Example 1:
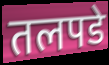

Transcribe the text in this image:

तलपडे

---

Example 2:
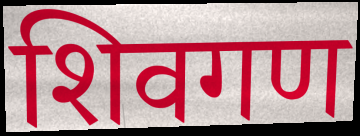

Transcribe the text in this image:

शिवगण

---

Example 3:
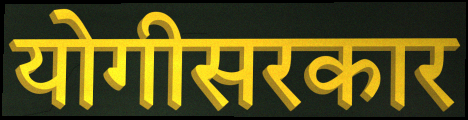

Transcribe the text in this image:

योगीसरकार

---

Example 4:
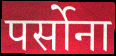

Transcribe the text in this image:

पर्सोना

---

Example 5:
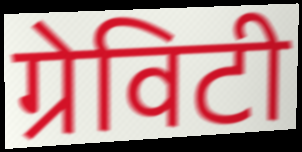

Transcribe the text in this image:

ग्रेविटी